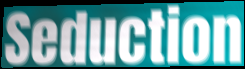
Seduction